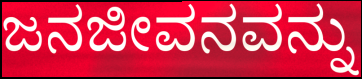
ಜನಜೀವನವನ್ನು